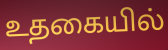
உதகையில்